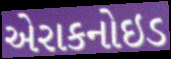
એરાકનોઇડ